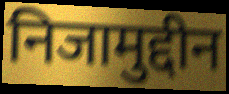
निजामुद्दीन